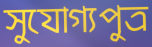
সুযোগ্যপুত্র